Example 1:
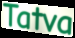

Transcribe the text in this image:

Tatva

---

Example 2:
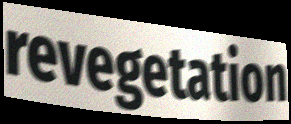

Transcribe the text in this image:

revegetation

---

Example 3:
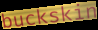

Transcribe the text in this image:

buckskin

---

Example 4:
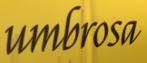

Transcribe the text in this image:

umbrosa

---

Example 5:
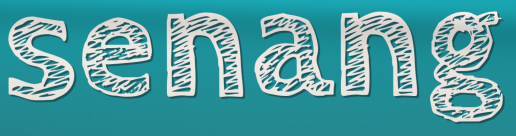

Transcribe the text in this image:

senang